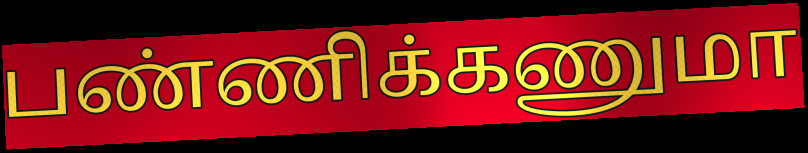
பண்ணிக்கணுமா